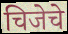
चिजेचे